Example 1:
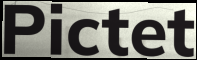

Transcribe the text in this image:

Pictet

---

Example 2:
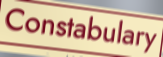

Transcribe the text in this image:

Constabulary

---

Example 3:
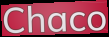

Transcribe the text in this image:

Chaco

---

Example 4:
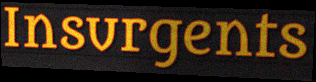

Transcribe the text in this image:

Insurgents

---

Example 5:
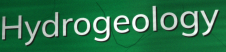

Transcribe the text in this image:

Hydrogeology